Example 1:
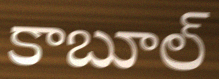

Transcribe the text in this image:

కాబూల్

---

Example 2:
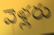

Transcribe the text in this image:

వెళ్లరు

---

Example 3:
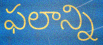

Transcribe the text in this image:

ఫలాన్ని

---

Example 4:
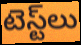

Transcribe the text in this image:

టెస్ట్‌లు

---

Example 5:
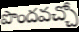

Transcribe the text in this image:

పొందవచ్చో